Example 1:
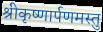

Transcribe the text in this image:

श्रीकृष्णार्पणमस्तु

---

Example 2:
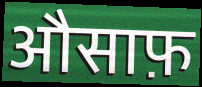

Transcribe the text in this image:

औसाफ़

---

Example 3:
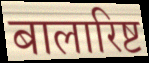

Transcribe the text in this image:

बालारिष्ट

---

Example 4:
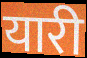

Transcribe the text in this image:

यारी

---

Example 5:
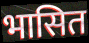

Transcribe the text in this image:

भासित